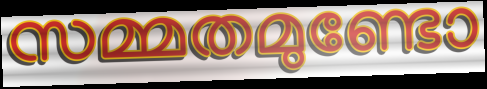
സമ്മതമുണ്ടോ